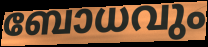
ബോധവും